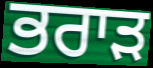
ਭਰਾੜ